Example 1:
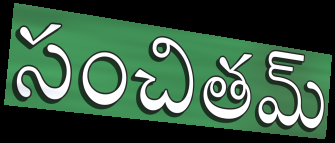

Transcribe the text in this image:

సంచితమ్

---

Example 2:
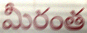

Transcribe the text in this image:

మీరంత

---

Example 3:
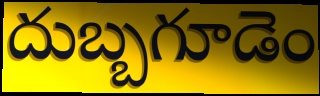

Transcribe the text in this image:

దుబ్బగూడెం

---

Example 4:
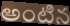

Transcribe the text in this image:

అంటిన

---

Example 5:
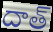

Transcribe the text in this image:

దాత్